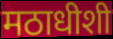
मठाधीशी